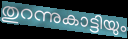
തുറന്നുകാട്ടിയും